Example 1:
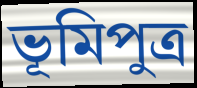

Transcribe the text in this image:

ভূমিপুত্ৰ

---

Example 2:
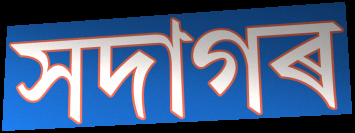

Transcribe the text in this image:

সদাগৰ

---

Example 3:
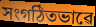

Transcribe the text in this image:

সংগঠিতভাৱে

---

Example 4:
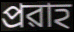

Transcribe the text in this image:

প্ৰৱাহ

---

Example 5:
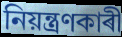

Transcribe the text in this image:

নিয়ন্ত্ৰণকাৰী